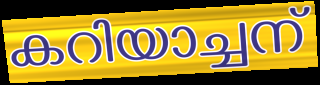
കറിയാച്ചന്